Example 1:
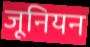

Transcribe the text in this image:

जूनियन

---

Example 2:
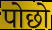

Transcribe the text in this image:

पोछो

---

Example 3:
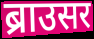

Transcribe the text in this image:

ब्राउसर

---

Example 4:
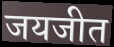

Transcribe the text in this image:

जयजीत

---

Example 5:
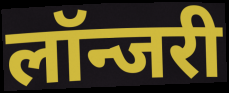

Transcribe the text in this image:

लॉन्जरी